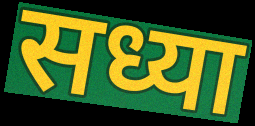
सध्या